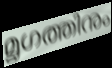
മൃഗത്തിനും